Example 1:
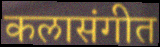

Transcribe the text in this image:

कलासंगीत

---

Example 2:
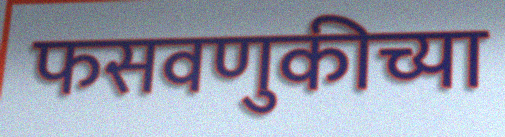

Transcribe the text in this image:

फसवणुकीच्या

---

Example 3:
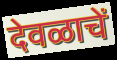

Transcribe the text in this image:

देवळाचें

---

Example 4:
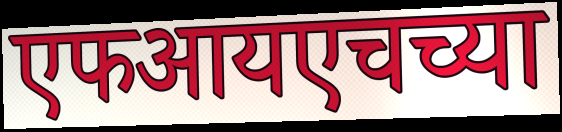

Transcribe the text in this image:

एफआयएचच्या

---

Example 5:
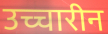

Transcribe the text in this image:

उच्चारीन